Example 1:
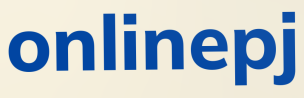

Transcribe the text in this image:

onlinepj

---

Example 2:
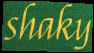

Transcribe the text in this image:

shaky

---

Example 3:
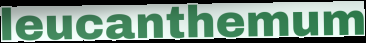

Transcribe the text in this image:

leucanthemum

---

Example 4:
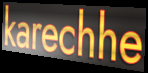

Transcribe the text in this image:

karechhe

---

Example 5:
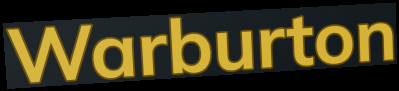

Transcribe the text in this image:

Warburton